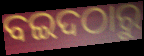
ବଇଦଠାରୁ